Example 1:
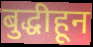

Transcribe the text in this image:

बुद्धीहून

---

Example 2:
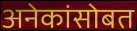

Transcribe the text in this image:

अनेकांसोबत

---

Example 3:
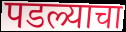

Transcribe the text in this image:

पडल्याचा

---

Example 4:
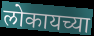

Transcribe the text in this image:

लोकायच्या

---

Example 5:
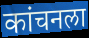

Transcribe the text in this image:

कांचनला